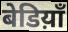
बेडिय़ाँ